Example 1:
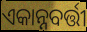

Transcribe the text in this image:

ଏକାନ୍ନବର୍ତ୍ତୀ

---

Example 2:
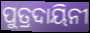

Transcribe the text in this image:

ପୁତ୍ରଦାୟିନୀ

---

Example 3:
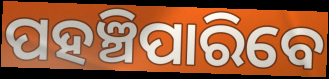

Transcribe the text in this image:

ପହଞ୍ଚିପାରିବେ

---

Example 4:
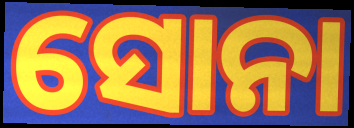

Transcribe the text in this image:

ସୋନା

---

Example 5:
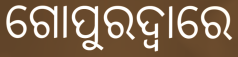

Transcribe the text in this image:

ଗୋପୁରଦ୍ଵାରେ